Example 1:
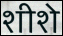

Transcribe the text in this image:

शीशे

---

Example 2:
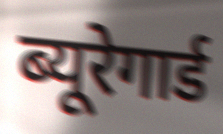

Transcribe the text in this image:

ब्यूरेगार्ड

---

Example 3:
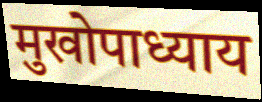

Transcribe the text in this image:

मुखोपाध्‍याय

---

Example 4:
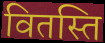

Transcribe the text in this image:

वितस्ति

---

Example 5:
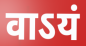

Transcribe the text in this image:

वाऽयं